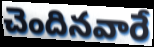
చెందినవారే